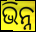
ଭିନ୍ନ